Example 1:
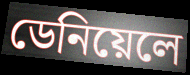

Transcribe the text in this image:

ডেনিয়েলে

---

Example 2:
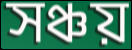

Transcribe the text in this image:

সঞ্চয়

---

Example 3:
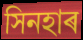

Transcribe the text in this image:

সিনহাৰ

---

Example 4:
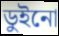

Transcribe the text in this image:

ডুইনো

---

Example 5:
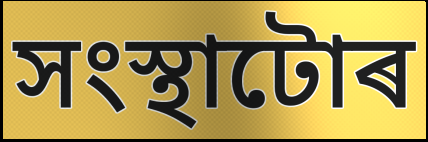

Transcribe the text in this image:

সংস্থাটোৰ